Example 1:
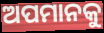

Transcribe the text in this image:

ଅପମାନକୁ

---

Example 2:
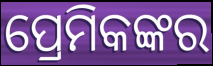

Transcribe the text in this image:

ପ୍ରେମିକଙ୍କର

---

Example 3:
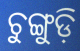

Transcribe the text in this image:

ଚୁଙ୍ଗୁଡ଼ି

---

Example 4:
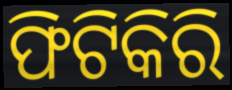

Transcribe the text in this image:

ଫିଟିକିରି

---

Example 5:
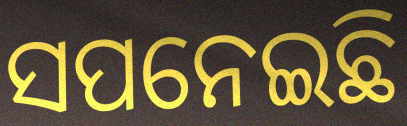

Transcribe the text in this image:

ସପନେଇଛି